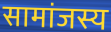
सामांजस्य